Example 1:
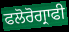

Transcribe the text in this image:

ਫਲੋਰੋਗ੍ਰਾਫੀ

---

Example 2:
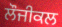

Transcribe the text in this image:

ਲੌਜੀਕਲ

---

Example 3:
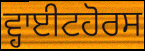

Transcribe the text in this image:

ਵ੍ਹਾਈਟਹੋਰਸ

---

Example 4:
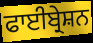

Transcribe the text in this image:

ਫਾਈਬ੍ਰੇਸ਼ਨ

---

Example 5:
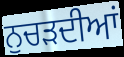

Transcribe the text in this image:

ਨੁਚੜਦੀਆਂ